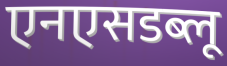
एनएसडब्लू